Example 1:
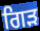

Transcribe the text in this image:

ਗਿੜ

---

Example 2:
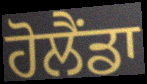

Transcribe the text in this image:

ਹੋਲੈਂਡਾ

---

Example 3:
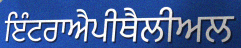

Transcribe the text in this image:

ਇੰਟਰਾਐਪੀਥੈਲੀਅਲ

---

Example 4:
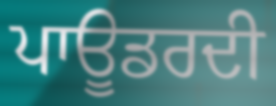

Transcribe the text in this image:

ਪਾਊਡਰਦੀ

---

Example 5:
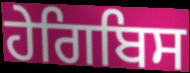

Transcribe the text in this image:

ਹੇਗਿਬਿਸ